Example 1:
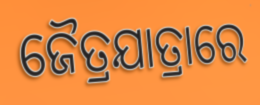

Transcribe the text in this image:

ଜୈତ୍ରଯାତ୍ରାରେ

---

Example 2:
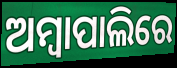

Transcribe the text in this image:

ଅମ୍ବାପାଲିରେ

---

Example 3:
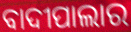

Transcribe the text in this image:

ବାଦୀପାଲାର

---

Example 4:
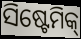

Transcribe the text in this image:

ସିଷ୍ଟେମିକ୍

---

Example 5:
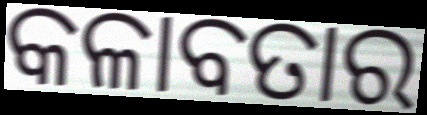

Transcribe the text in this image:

କଳାବତାର